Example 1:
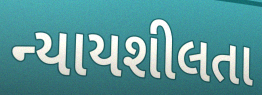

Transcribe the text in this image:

ન્યાયશીલતા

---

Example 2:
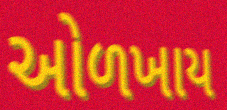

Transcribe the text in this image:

ઓળખાય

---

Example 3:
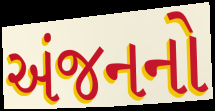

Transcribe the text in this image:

અંજનનો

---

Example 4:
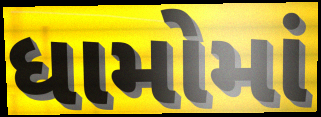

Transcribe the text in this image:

ધામોમાં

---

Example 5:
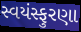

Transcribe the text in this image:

સ્વયંસ્ફુરણા